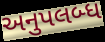
અનુપલબ્ધ